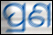
ପ୍ରଣ